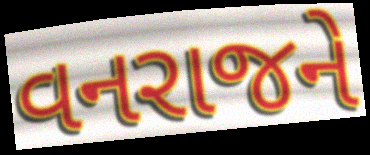
વનરાજને